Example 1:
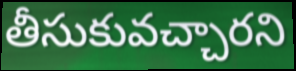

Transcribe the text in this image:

తీసుకువచ్చారని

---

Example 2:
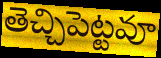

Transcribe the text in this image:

తెచ్చిపెట్టవూ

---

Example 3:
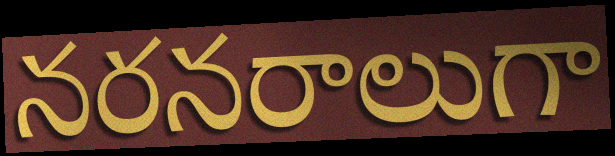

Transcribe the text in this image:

నరనరాలుగా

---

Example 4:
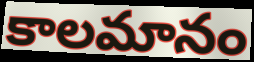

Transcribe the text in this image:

కాలమానం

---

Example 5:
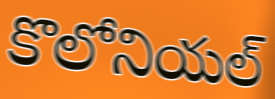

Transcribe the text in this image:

కొలోనియల్